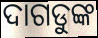
ଦାଗଡୁଙ୍କ